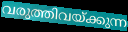
വരുത്തിവയ്ക്കുന്ന